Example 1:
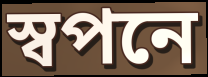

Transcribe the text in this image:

স্বপনে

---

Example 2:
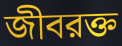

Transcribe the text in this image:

জীবরক্ত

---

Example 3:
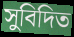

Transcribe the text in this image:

সুবিদিত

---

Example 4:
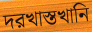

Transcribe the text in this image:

দরখাস্তখানি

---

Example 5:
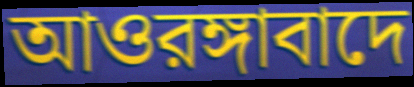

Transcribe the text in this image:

আওরঙ্গাবাদে